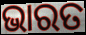
ଭାରତ